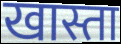
खास्ता